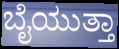
ಬೈಯುತ್ತಾ